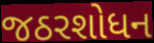
જઠરશોધન